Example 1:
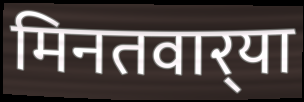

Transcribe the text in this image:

मिनतवार्‍या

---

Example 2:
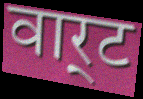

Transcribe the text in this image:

वार्ट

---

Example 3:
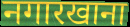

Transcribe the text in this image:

नगारखाना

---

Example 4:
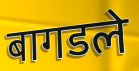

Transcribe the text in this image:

बागडले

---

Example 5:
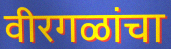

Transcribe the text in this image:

वीरगळांचा